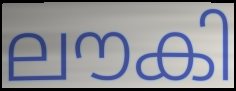
ലൗകി